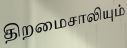
திறமைசாலியும்